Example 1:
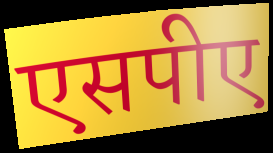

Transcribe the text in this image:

एसपीए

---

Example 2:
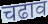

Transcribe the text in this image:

चढाव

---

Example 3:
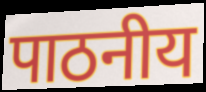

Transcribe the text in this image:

पाठनीय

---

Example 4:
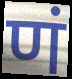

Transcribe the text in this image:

णं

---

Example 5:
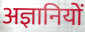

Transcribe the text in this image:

अज्ञानियों